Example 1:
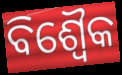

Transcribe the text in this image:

ବିଶ୍ୱୈକ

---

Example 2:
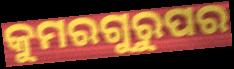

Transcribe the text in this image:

କୁମରଗୁରୁପର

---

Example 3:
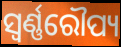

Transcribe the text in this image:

ସ୍ୱର୍ଣ୍ଣରୌପ୍ୟ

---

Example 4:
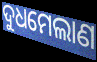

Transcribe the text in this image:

ଦୁଧମେଲାଣ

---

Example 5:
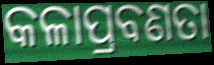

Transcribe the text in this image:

କଳାପ୍ରବଣତା